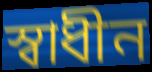
স্বাধীন